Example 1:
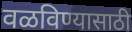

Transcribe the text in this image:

वळविण्यासाठी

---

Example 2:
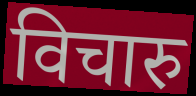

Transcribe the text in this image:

विचारु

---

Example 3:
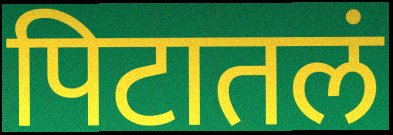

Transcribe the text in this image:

पिटातलं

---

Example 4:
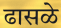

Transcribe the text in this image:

ढासळे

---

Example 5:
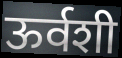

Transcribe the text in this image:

ऊर्वशी